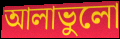
আলাভুলো